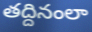
తద్దినంలా